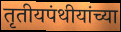
तृतीयपंथीयांच्या